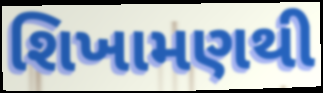
શિખામણથી